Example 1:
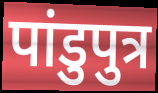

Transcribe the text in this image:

पांडुपुत्र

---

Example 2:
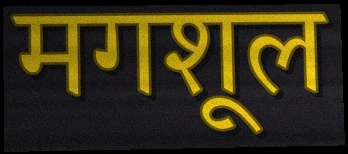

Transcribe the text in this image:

मगशूल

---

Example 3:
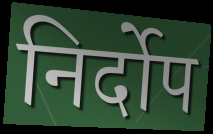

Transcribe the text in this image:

निर्दोप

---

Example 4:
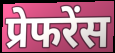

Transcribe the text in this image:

प्रेफरेंस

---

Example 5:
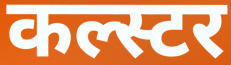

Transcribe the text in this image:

कल्स्टर